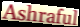
Ashraful